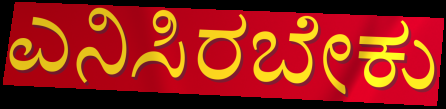
ಎನಿಸಿರಬೇಕು